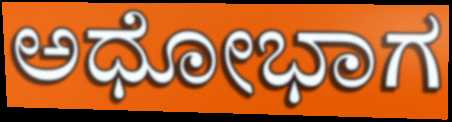
ಅಧೋಭಾಗ